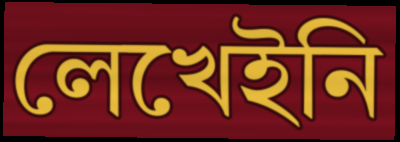
লেখেইনি